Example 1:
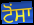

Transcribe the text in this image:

ਟੋਂਸਾ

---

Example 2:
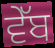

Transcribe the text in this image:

ਵੇੱਬ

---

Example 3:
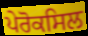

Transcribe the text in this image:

ਪੇਰੋਕਸਿਲ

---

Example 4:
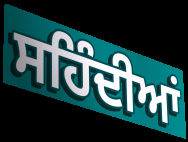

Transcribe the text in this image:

ਸਹਿੰਦੀਆਂ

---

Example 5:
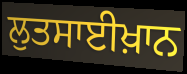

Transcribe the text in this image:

ਲੁਤਸਾਈਖ਼ਾਨ